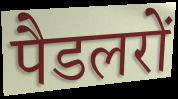
पैडलरों